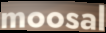
moosal